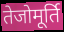
तेजोमूर्ति